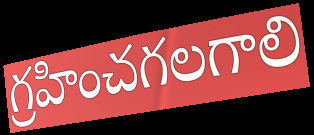
గ్రహించగలగాలి